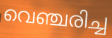
വെഞ്ചരിച്ച